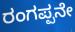
ರಂಗಪ್ಪನೇ